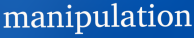
manipulation